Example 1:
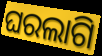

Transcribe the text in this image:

ଘରଲାଗି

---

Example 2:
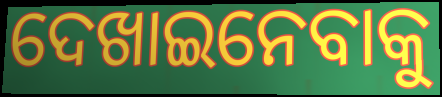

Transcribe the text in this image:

ଦେଖାଇନେବାକୁ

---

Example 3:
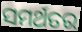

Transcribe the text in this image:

ସମର୍ଥତର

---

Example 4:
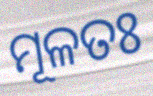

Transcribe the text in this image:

ମୂଳତଃ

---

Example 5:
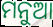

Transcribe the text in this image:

ମନୁଆ